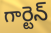
గార్టెన్